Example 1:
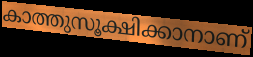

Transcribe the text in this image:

കാത്തുസൂക്ഷിക്കാനാണ്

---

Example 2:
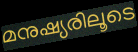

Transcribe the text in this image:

മനുഷ്യരിലൂടെ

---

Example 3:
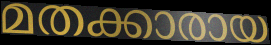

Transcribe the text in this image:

മതക്കാരായ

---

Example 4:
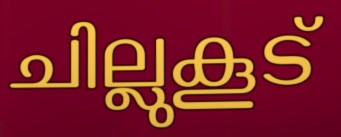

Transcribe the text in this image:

ചില്ലുകൂട്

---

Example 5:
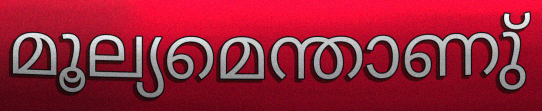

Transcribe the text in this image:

മൂല്യമെന്താണു്